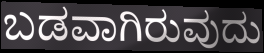
ಬಡವಾಗಿರುವುದು